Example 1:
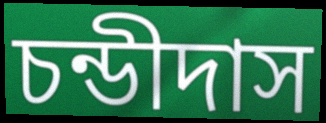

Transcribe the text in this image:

চন্ডীদাস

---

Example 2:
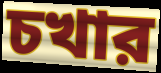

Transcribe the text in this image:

চখার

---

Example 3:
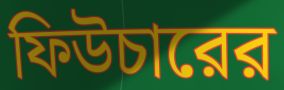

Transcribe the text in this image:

ফিউচারের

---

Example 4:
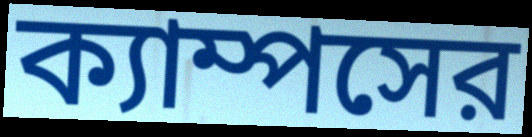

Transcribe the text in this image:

ক্যাম্পসের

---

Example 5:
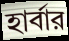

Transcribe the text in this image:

হার্বার